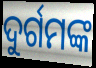
ଦୁର୍ଗମଙ୍କ